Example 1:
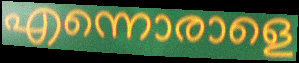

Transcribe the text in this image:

എന്നൊരാളെ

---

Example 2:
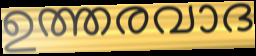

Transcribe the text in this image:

ഉത്തരവാദ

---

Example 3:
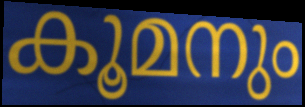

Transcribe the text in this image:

കൂമനും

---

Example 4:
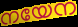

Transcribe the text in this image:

നയേന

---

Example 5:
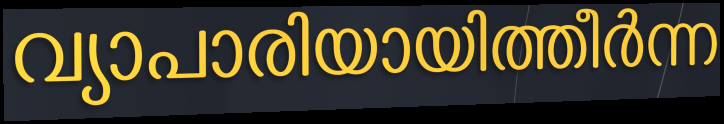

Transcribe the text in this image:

വ്യാപാരിയായിത്തീർന്ന